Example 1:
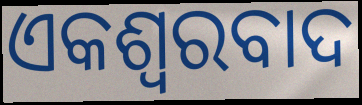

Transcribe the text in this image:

ଏକଶ୍ୱରବାଦ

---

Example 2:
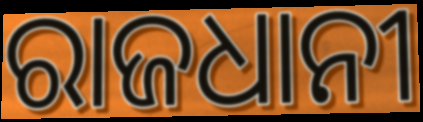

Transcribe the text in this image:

ରାଜଧାନୀ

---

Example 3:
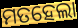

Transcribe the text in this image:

ମତହେଲା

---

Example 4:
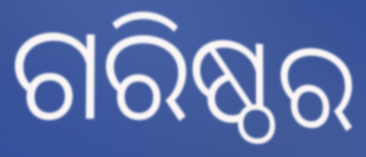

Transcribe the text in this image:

ଗରିଷ୍ଠର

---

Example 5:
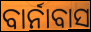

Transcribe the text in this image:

ବାର୍ନାବାସ